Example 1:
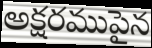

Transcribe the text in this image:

అక్షరముపైన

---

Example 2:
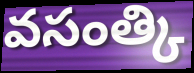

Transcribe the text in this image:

వసంత్కి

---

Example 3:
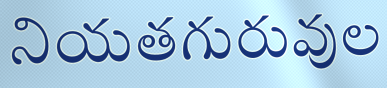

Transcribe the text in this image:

నియతగురువుల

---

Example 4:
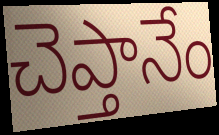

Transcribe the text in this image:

చెప్తానేం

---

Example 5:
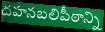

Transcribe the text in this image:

దహనబలిపీఠాన్ని